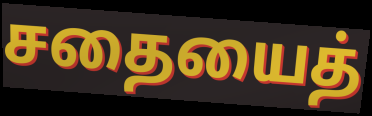
சதையைத்